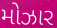
મોઝાર